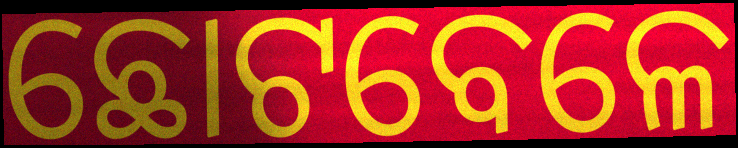
ଛୋଟବେଳେ